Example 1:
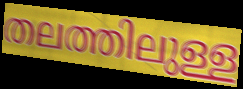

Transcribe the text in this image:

തലത്തിലുള്ള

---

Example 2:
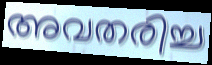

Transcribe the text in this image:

അവതരിച്ച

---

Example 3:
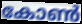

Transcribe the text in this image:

കോൺ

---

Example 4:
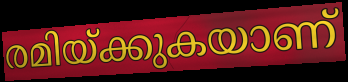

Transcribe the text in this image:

രമിയ്ക്കുകയാണ്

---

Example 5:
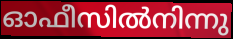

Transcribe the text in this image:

ഓഫീസിൽനിന്നു